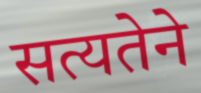
सत्यतेने